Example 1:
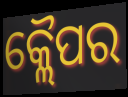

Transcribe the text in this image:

କ୍ଲୈପର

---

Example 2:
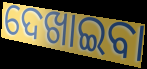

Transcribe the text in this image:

ଦେଖାଇବା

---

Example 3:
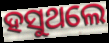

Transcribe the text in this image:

ହସୁଥଲେ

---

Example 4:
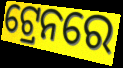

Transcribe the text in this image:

ଟ୍ରେନରେ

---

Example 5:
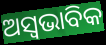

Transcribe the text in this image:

ଅସ୍ୱଭାବିକ